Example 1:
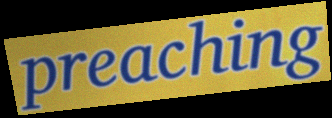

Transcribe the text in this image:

preaching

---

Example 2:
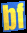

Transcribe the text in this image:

bf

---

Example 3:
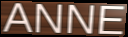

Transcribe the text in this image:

ANNE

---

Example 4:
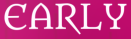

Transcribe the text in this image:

EARLY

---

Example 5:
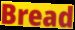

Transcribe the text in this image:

Bread